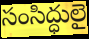
సంసిద్ధులై